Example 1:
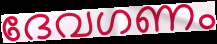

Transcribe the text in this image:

ദേവഗണം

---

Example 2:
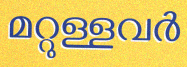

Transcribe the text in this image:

മറ്റുള്ളവർ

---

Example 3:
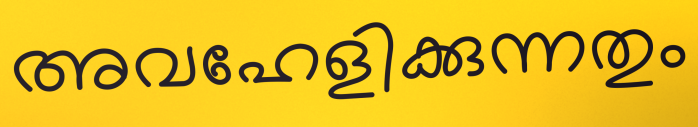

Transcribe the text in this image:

അവഹേളിക്കുന്നതും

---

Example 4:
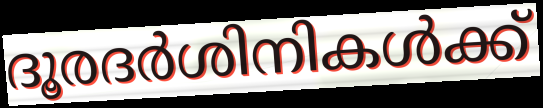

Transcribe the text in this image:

ദൂരദർശിനികൾക്ക്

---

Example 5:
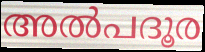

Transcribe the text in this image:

അൽപദൂര